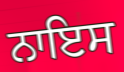
ਨਾਇਸ